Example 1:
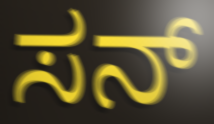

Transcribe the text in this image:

ಸನ್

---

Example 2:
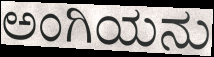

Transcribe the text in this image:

ಅಂಗಿಯನು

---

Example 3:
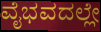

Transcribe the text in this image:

ವೈಭವದಲ್ಲೇ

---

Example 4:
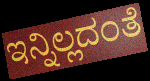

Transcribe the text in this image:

ಇನ್ನಿಲ್ಲದಂತೆ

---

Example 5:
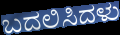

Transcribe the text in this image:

ಬದಲಿಸಿದಳು